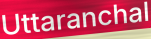
Uttaranchal